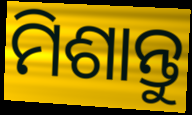
ମିଶାନ୍ତୁ